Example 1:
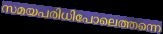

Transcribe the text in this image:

സമയപരിധിപോലെത്തന്നെ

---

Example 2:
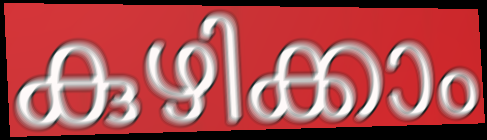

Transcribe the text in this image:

കുഴിക്കാം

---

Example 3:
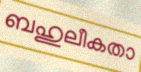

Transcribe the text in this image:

ബഹുലീകതാ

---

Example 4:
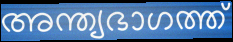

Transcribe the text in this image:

അന്ത്യഭാഗത്ത്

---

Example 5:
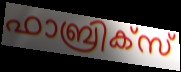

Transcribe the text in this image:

ഫാബ്രിക്സ്